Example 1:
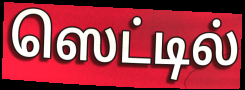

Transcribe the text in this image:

ஸெட்டில்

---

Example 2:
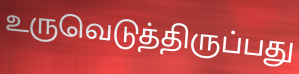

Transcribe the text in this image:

உருவெடுத்திருப்பது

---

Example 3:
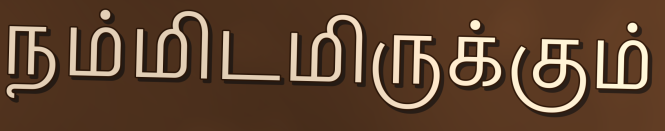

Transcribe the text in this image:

நம்மிடமிருக்கும்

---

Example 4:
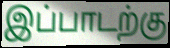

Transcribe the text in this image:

இப்பாடற்கு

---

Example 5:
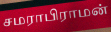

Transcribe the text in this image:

சமராபிராமன்